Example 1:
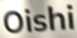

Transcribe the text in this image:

Oishi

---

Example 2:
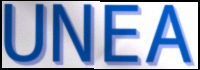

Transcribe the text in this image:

UNEA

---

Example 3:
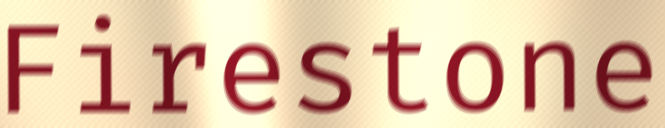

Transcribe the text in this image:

Firestone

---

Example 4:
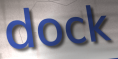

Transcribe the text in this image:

dock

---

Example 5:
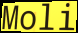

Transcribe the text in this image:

Moli